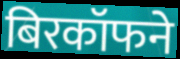
बिरकॉफने